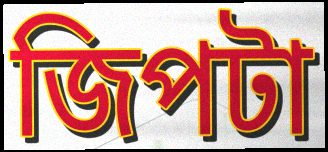
জিপটা